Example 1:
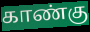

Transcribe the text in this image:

காண்கு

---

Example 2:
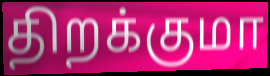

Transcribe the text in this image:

திறக்குமா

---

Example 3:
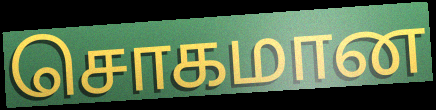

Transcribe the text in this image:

சொகமான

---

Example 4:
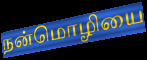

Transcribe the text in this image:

நன்மொழியை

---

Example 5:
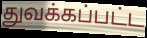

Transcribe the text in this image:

துவக்கப்பட்ட